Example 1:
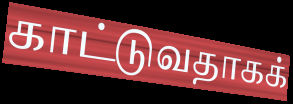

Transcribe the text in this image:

காட்டுவதாகக்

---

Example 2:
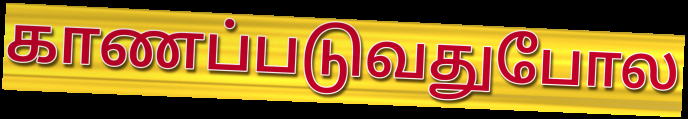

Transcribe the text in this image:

காணப்படுவதுபோல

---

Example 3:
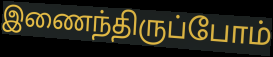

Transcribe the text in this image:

இணைந்திருப்போம்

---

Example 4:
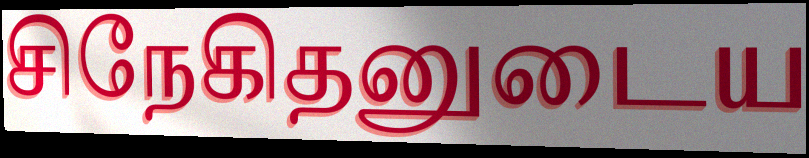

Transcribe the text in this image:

சிநேகிதனுடைய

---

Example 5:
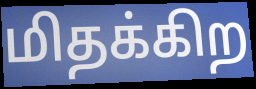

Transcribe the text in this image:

மிதக்கிற